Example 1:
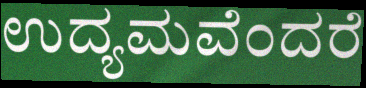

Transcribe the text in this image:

ಉದ್ಯಮವೆಂದರೆ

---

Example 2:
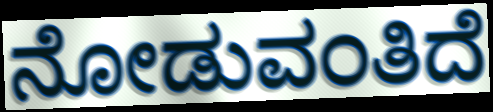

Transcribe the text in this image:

ನೋಡುವಂತಿದೆ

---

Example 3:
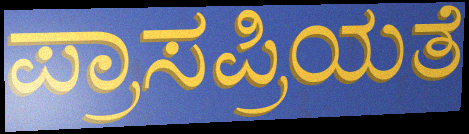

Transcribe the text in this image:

ಪ್ರಾಸಪ್ರಿಯತೆ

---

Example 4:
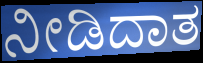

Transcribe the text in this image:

ನೀಡಿದಾತ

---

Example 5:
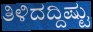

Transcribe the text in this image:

ತಿಳಿದದ್ದಿಷ್ಟು